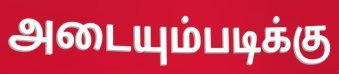
அடையும்படிக்கு